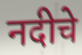
नदीचे